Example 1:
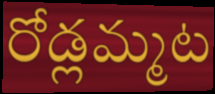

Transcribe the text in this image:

రోడ్లమ్మట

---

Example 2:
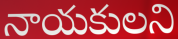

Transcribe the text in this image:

నాయకులని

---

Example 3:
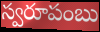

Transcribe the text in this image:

స్వరూపంబు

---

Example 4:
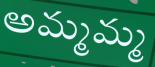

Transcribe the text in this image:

అమ్మమ్మ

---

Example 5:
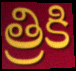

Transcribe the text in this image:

త్రికి